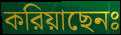
করিয়াছেনঃ